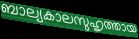
ബാല്യകാലസുഹൃത്തായ